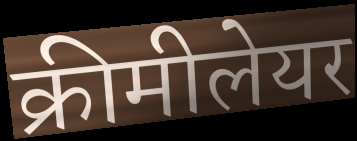
क्रीमीलेयर